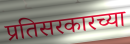
प्रतिसरकारच्या